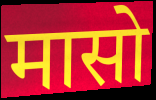
मासो